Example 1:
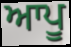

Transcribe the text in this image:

ਆਪੂ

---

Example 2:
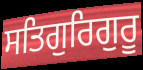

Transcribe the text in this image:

ਸਤਿਗੁਰਿਗੁਰੂ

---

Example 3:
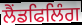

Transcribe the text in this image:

ਲੈਂਡਫਿਲਿੰਗ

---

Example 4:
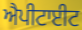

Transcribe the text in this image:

ਐਪੀਟਾਈਟ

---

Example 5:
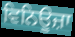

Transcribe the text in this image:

ਵਿਨਿਊਜ਼ਾ